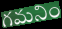
గమనిం